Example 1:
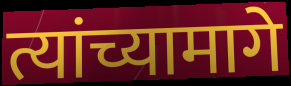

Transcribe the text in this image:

त्यांच्यामागे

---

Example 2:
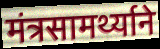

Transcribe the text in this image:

मंत्रसामर्थ्याने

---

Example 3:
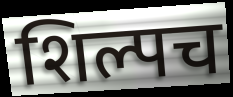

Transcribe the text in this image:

शिल्पच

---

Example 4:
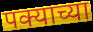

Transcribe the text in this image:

पक्याच्या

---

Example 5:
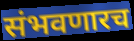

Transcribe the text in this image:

संभवणारच